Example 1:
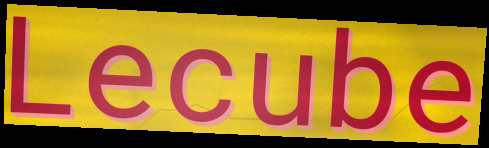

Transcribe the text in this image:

Lecube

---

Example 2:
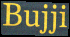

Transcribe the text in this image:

Bujji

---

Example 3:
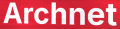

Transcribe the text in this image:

Archnet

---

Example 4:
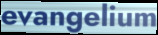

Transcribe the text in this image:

evangelium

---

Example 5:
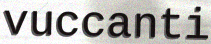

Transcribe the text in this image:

vuccanti